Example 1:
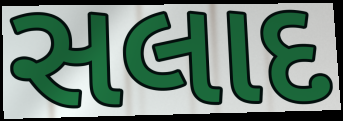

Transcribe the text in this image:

સલાદ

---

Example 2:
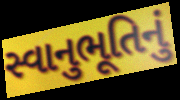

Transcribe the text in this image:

સ્વાનુભૂતિનું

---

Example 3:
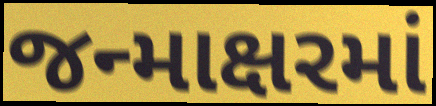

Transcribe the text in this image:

જન્માક્ષરમાં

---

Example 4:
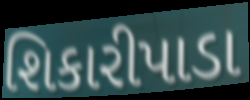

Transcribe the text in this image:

શિકારીપાડા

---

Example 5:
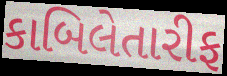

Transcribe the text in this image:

કાબિલેતારીફ